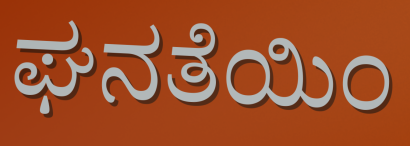
ಘನತೆಯಿಂ